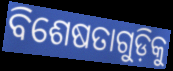
ବିଶେଷତାଗୁଡ଼ିକୁ